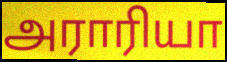
அராரியா